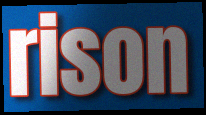
rison